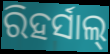
ରିହର୍ସାଲ୍